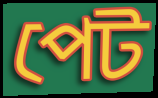
পেট